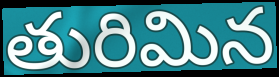
తురిమిన